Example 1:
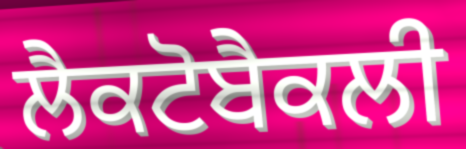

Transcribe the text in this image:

ਲੈਕਟੋਬੈਕਲੀ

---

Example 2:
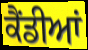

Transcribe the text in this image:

ਕੈਂਡੀਆਂ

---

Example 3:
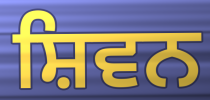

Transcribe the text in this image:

ਸ਼ਿਵਨ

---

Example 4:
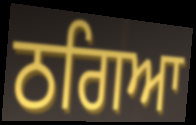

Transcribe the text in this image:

ਠਗਿਆ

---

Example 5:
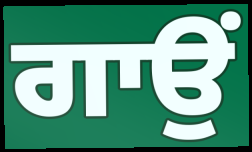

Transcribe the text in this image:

ਗਾਉਂ